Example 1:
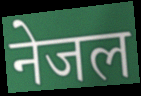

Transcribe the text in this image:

नेजल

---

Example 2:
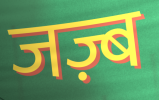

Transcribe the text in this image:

जज़्ब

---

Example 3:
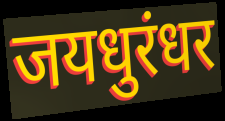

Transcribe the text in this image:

जयधुरंधर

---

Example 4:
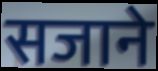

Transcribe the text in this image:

सजाने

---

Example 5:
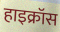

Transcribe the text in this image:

हाइक्रॉस